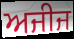
ਅਜੀਜ